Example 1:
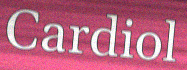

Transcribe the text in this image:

Cardiol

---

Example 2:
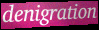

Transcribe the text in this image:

denigration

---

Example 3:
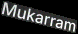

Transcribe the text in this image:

Mukarram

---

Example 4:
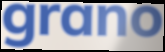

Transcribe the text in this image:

grano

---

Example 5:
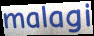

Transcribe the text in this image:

malagi